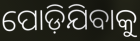
ପୋଡ଼ିଯିବାକୁ